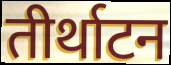
तीर्थाटन